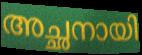
അച്ഛനായി